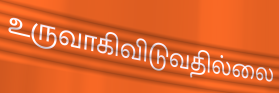
உருவாகிவிடுவதில்லை